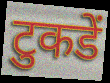
टुकडें